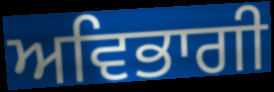
ਅਵਿਭਾਗੀ